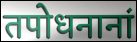
तपोधनानां